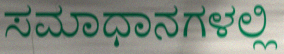
ಸಮಾಧಾನಗಳಲ್ಲಿ